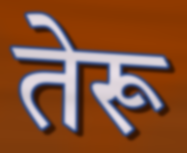
तेरू